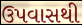
ઉપવાસથી